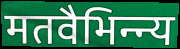
मतवैभिन्न्य